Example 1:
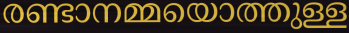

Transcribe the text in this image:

രണ്ടാനമ്മയൊത്തുള്ള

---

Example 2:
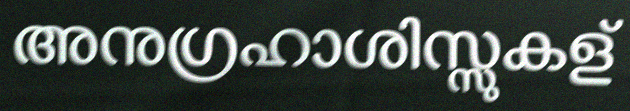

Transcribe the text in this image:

അനുഗ്രഹാശിസ്സുകള്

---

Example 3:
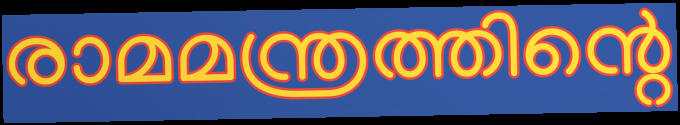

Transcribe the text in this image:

രാമമന്ത്രത്തിന്റെ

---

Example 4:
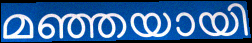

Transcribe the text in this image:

മഞ്ഞയായി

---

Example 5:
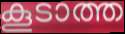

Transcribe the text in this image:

കൂടാത്ത